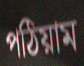
পঠিয়াম